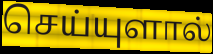
செய்யுளால்